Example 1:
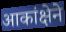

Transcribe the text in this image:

आकांक्षेने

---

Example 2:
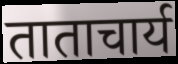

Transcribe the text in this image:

ताताचार्य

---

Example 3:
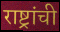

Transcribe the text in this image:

राष्ट्रांची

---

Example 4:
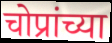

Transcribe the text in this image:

चोप्रांच्या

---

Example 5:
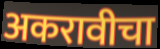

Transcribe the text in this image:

अकरावीचा